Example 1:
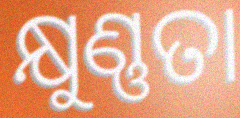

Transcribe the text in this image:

କ୍ଷୁଣ୍ଣତା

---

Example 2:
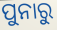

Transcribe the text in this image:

ପୁନାରୁ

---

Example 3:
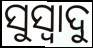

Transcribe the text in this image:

ସୁସ୍ଵାଦୁ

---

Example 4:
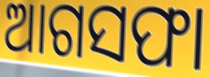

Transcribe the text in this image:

ଆଗସଫା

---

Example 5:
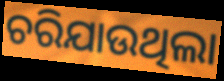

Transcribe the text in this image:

ଚରିଯାଉଥିଲା